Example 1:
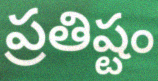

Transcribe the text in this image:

ప్రతిష్టం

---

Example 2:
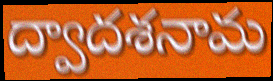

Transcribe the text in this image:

ద్వాదశనామ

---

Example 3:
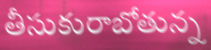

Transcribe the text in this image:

తీసుకురాబోతున్న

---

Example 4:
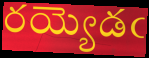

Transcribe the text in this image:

రయ్యెడఁ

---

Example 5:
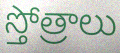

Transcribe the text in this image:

స్తోత్రాలు